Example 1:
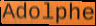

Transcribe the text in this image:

Adolphe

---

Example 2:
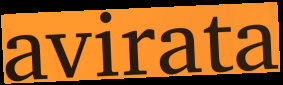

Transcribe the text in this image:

avirata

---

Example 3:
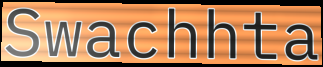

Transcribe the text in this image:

Swachhta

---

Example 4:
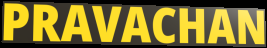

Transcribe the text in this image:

PRAVACHAN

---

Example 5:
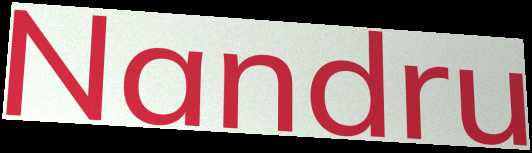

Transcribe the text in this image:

Nandru